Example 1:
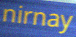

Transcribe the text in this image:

nirnay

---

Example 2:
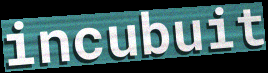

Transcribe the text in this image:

incubuit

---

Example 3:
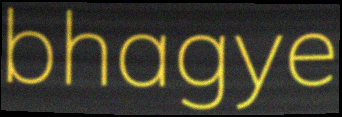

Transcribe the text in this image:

bhagye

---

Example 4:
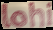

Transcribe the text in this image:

lohi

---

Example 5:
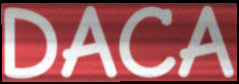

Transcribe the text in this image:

DACA